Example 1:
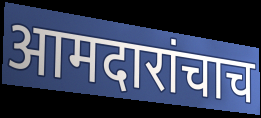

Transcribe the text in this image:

आमदारांचाच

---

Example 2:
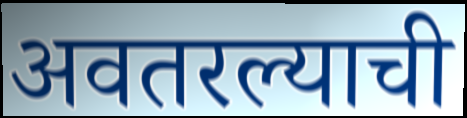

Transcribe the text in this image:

अवतरल्याची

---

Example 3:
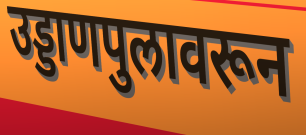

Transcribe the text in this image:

उड्डाणपुलावरून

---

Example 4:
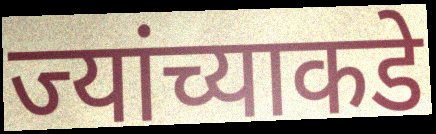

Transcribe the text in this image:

ज्यांच्याकडे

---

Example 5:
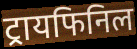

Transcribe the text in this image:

ट्रायफिनिल